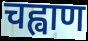
चह्वाण